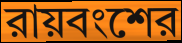
রায়বংশের